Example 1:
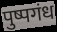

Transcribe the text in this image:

पुष्पगंध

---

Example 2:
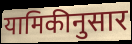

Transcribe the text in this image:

यामिकीनुसार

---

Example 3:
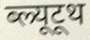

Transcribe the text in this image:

ब्ल्यूटूथ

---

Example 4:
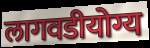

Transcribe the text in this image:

लागवडीयोग्य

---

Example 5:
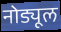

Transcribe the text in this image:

नोड्यूल